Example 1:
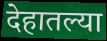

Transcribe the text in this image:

देहातल्या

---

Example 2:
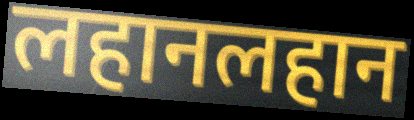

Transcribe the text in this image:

लहानलहान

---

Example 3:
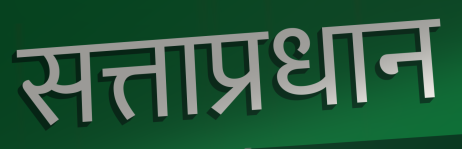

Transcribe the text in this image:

सत्ताप्रधान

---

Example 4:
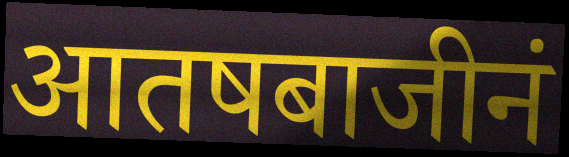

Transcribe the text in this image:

आतषबाजीनं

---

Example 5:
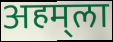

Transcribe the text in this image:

अहम्‌ला